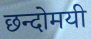
छन्दोमयी